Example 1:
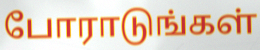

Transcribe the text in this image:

போராடுங்கள்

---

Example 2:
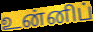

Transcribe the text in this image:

உன்னிப்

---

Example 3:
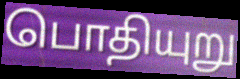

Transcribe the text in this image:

பொதியுறு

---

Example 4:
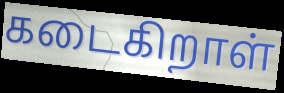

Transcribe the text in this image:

கடைகிறாள்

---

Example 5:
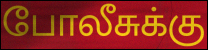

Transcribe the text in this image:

போலீசுக்கு